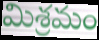
మిశ్రమం